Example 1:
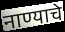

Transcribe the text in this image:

नाण्याचे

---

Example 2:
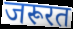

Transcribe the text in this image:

जरूरत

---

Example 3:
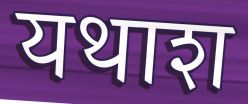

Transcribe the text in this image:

यथाश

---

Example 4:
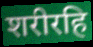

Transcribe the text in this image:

शरीरहि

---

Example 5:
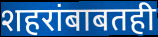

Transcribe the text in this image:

शहरांबाबतही